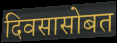
दिवसासोबत